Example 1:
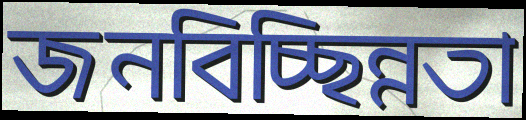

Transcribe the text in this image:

জনবিচ্ছিন্নতা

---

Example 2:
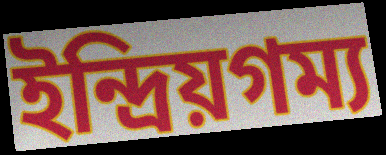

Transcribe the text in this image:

ইন্দ্রিয়গম্য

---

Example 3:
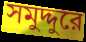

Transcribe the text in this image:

সমুদ্দুরে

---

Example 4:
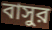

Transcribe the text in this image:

বাসুর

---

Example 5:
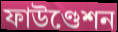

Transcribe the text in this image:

ফাউণ্ডেশন